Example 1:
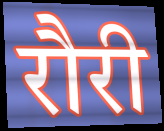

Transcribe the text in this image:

रौरी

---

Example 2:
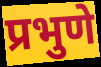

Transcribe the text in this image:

प्रभुणे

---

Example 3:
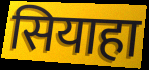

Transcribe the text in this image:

सियाहा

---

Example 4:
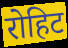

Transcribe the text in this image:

रोहिट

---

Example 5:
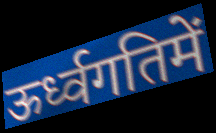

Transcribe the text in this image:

ऊर्ध्वगतिमें